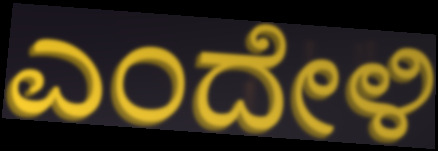
ಎಂದೇಳಿ